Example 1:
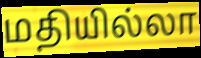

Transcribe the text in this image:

மதியில்லா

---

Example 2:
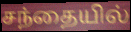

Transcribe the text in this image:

சந்தையில்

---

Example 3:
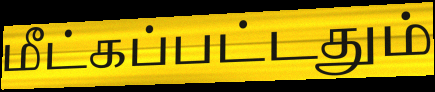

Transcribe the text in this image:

மீட்கப்பட்டதும்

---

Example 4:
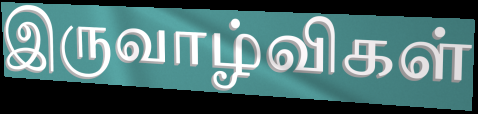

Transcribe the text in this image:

இருவாழ்விகள்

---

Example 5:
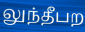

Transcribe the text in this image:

லுந்தீபற